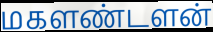
மகளண்டளன்